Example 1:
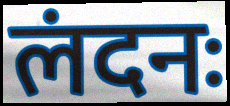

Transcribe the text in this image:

लंदनः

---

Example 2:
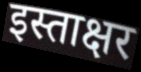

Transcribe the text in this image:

इस्ताक्षर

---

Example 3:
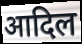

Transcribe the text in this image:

आदिल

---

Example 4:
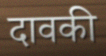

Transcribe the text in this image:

दावकी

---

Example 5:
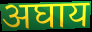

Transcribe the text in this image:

अघाय